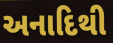
અનાદિથી